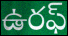
ఉరఫ్